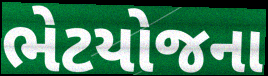
ભેટયોજના